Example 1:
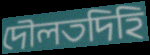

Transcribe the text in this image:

দৌলতদিহি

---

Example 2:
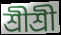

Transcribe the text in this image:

শ্রীশ্রী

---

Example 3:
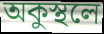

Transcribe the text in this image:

অকুস্থলে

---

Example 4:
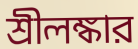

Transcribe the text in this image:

শ্রীলঙ্কার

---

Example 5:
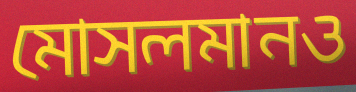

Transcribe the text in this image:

মোসলমানও